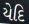
યેદિ